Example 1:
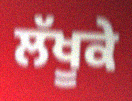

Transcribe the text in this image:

ਲੱਖੂਕੇ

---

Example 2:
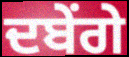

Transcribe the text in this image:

ਦਬੇਂਗੇ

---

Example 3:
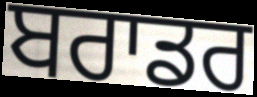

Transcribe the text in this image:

ਬਰਾਡਰ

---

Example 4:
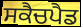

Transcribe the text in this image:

ਸਕੈਚਪੈਡ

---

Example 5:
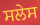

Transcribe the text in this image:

ਸਲੇਸ